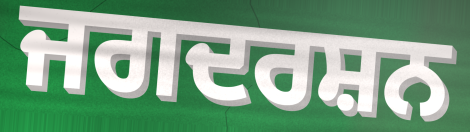
ਜਗਦਰਸ਼ਨ